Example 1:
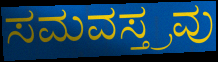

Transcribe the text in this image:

ಸಮವಸ್ತ್ರವು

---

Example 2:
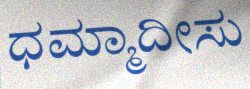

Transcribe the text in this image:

ಧಮ್ಮಾದೀಸು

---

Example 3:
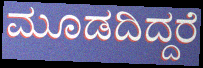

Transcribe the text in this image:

ಮೂಡದಿದ್ದರೆ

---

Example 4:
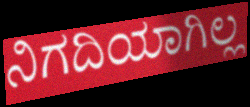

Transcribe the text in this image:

ನಿಗದಿಯಾಗಿಲ್ಲ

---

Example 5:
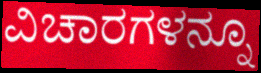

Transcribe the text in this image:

ವಿಚಾರಗಳನ್ನೂ